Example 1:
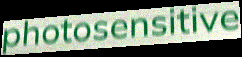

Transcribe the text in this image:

photosensitive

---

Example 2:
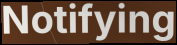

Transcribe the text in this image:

Notifying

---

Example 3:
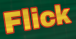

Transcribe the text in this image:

Flick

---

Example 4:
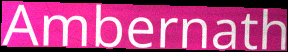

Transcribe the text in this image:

Ambernath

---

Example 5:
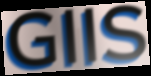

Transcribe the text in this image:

GIIS